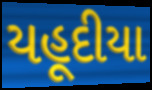
યહૂદીયા